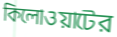
কিলোওয়াটের